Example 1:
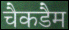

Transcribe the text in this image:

चैकडैम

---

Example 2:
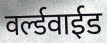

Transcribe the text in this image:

वर्ल्डवाईड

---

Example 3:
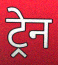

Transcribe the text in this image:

ट्रेन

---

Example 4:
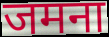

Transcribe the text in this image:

जमना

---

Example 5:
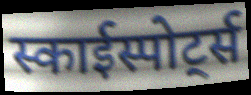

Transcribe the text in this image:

स्काईस्पोर्ट्स